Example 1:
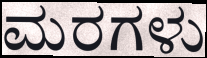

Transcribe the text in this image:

ಮರಗಳು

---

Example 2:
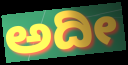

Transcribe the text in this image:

ಅದೀ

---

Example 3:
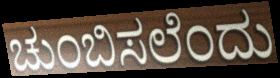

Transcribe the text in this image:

ಚುಂಬಿಸಲೆಂದು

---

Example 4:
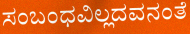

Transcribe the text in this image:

ಸಂಬಂಧವಿಲ್ಲದವನಂತೆ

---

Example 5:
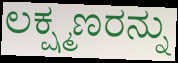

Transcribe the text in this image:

ಲಕ್ಷ್ಮಣರನ್ನು